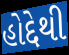
હોદ્દેથી